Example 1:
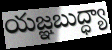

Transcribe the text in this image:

యజ్ఞబుద్ధ్యా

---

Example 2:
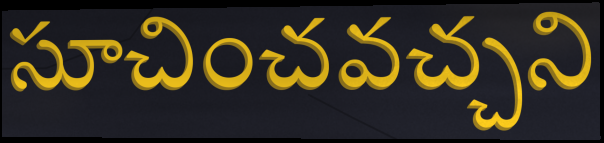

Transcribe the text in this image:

సూచించవచ్చని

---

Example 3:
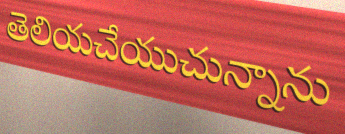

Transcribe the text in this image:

తెలియచేయుచున్నాను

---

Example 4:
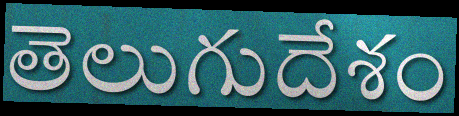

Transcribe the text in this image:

తెలుగుదేశం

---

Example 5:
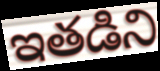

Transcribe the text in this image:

ఇతడిని